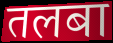
तलबा